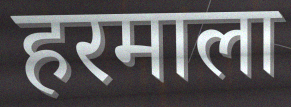
हरमाला